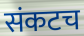
संकटच